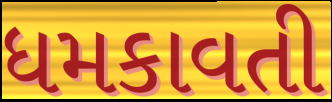
ધમકાવતી